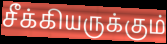
சீக்கியருக்கும்